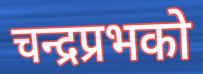
चन्द्रप्रभको